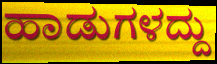
ಹಾಡುಗಳದ್ದು